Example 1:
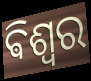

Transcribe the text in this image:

ଵିଶ୍ୱର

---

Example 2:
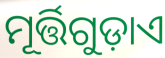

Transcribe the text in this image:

ମୂର୍ତ୍ତିଗୁଡ଼ାଏ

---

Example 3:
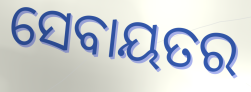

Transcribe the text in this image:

ସେବାୟତର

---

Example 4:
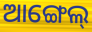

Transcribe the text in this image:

ଆଙ୍ଗେଲ୍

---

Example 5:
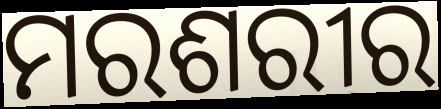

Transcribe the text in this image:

ମରଶରୀର